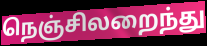
நெஞ்சிலறைந்து